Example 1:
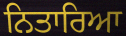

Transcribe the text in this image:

ਨਿਤਾਰਿਆ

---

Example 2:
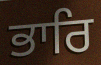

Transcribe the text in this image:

ਭਾਰਿ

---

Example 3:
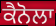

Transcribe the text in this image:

ਕੈਨੋਲਾ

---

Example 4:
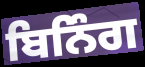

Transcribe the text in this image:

ਬਿਨਿੰਗ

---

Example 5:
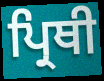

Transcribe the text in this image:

ਪ੍ਰਿਥੀ